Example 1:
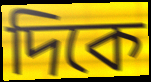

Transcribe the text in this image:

দিকে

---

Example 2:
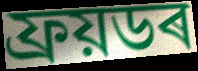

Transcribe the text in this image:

ফ্ৰয়ডৰ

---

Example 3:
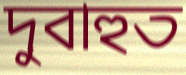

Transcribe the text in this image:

দুবাহুত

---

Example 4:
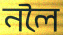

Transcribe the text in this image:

নলৈ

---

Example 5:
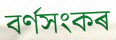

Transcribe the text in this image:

বৰ্ণসংকৰ